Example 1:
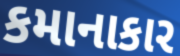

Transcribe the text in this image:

કમાનાકાર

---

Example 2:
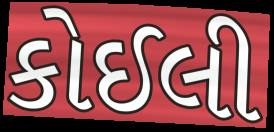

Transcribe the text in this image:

કોઈલી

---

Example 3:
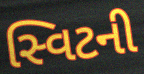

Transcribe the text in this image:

સ્વિટની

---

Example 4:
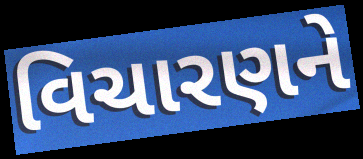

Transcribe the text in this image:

વિચારણને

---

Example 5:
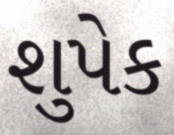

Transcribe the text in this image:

શુપેક